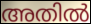
അതിൽ